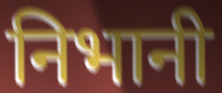
निभानी